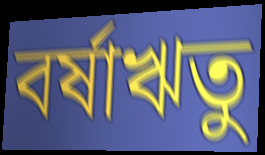
বর্ষাঋতু